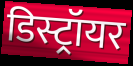
डिस्‍ट्रॉयर